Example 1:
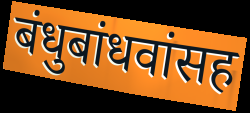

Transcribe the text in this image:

बंधुबांधवांसह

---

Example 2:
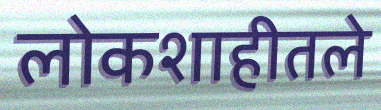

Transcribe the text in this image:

लोकशाहीतले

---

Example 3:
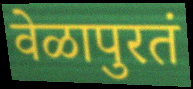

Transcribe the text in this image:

वेळापुरतं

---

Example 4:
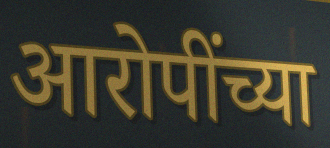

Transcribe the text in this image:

आरोपींच्या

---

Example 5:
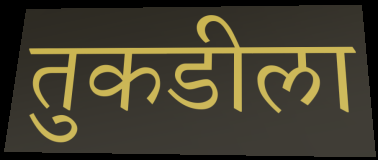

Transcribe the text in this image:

तुकडीला